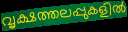
വൃക്ഷത്തലപ്പുകളിൽ